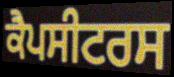
ਕੈਪਸੀਟਰਸ